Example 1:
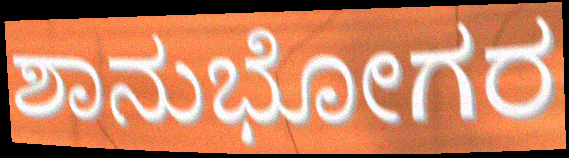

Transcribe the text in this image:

ಶಾನುಭೋಗರ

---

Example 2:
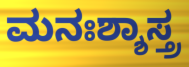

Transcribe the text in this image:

ಮನಃಶ್ಶಾಸ್ತ್ರ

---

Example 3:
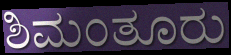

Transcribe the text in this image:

ಶಿಮಂತೂರು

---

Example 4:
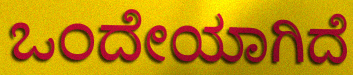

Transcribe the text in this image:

ಒಂದೇಯಾಗಿದೆ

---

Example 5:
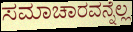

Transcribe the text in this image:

ಸಮಾಚಾರವನ್ನೆಲ್ಲ